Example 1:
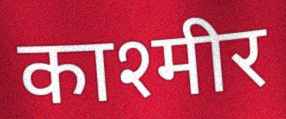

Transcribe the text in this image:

काश्मीर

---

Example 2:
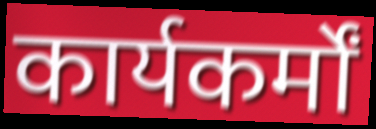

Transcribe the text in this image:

कार्यकर्मों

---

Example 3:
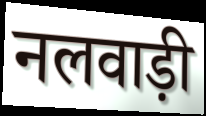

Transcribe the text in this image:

नलवाड़ी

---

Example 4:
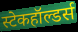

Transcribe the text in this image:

स्टेकहॉल्डर्स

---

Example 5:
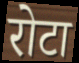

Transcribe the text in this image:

रोटा